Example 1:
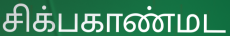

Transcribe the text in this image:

சிக்பகாண்மட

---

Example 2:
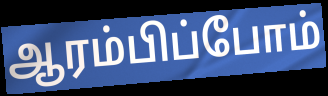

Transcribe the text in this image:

ஆரம்பிப்போம்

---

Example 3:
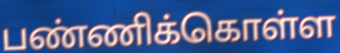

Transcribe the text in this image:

பண்ணிக்கொள்ள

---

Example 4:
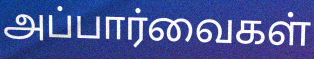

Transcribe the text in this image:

அப்பார்வைகள்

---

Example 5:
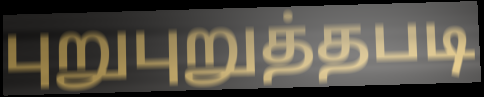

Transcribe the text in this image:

புறுபுறுத்தபடி